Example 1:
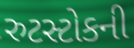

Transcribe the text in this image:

રુટસ્ટોકની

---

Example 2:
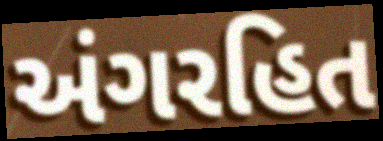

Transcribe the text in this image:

અંગરહિત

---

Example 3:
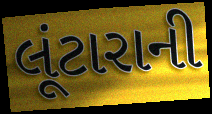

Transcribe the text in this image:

લૂંટારાની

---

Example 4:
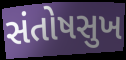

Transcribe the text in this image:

સંતોષસુખ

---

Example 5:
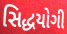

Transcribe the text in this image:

સિદ્ધયોગી